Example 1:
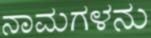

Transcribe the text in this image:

ನಾಮಗಳನು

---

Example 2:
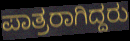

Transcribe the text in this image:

ಪಾತ್ರರಾಗಿದ್ದರು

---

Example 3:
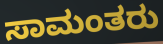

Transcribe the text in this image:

ಸಾಮಂತರು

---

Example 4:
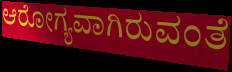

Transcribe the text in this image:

ಆರೋಗ್ಯವಾಗಿರುವಂತೆ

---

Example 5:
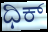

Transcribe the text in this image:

ಧಿಕ್